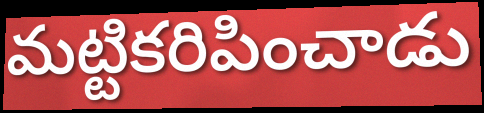
మట్టికరిపించాడు